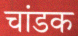
चांडक